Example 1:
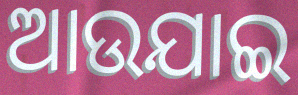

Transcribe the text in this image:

ଆଉଯାଇ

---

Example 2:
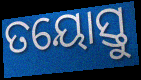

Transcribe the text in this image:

ତୟୋସ୍ତୁ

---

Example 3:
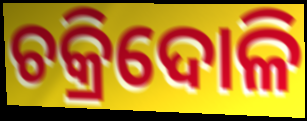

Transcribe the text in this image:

ଚକ୍ରିଦୋଳି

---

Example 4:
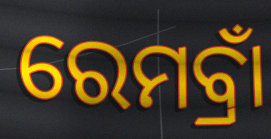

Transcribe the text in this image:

ରେମବ୍ରାଁ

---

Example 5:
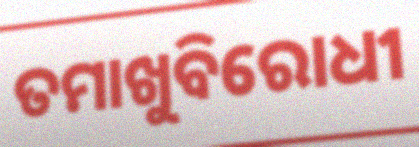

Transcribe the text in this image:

ତମାଖୁବିରୋଧୀ